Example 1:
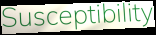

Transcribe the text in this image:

Susceptibility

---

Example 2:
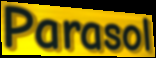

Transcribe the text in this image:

Parasol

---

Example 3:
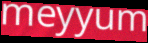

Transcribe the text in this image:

meyyum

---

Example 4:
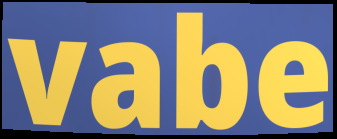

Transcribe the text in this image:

vabe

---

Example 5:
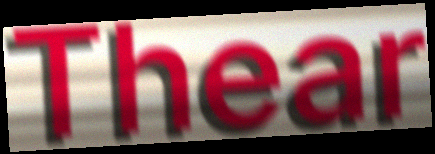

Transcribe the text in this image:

Thear